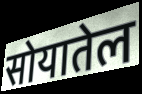
सोयातेल